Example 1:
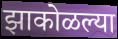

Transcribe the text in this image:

झाकोळल्या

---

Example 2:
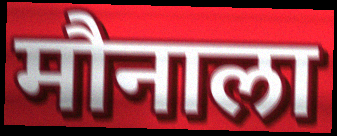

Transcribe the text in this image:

मौनाला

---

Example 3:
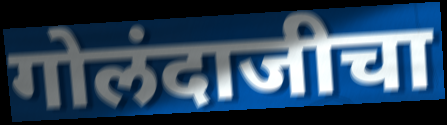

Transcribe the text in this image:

गोलंदाजीचा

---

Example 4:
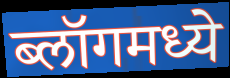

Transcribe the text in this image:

ब्लॉगमध्ये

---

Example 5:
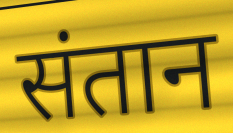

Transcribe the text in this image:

संतान